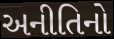
અનીતિનો